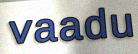
vaadu